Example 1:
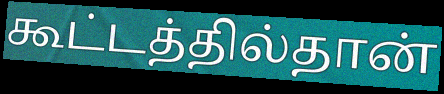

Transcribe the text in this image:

கூட்டத்தில்தான்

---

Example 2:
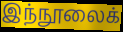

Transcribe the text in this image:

இந்நூலைக்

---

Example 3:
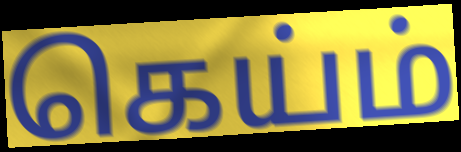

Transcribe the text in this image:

கெய்ம்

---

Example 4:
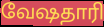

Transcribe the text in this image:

வேஷதாரி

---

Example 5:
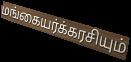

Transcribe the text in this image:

மங்கையர்க்கரசியும்